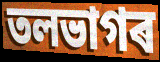
তলভাগৰ